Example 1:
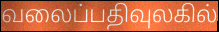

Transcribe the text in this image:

வலைப்பதிவுலகில்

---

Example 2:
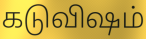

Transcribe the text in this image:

கடுவிஷம்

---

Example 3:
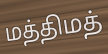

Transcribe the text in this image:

மத்திமத்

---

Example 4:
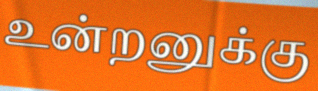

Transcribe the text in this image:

உன்றனுக்கு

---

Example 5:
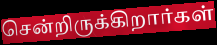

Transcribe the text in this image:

சென்றிருக்கிறார்கள்